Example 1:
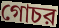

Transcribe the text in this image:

গোচর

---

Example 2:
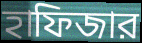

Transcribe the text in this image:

হাফিজার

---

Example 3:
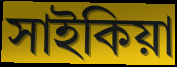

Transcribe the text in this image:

সাইকিয়া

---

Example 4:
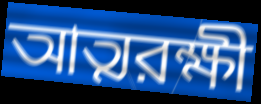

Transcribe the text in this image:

আত্মরক্ষী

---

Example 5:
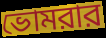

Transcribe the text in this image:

ভোমরার